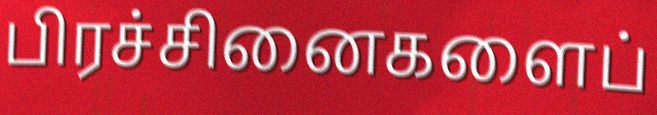
பிரச்சினைகளைப்